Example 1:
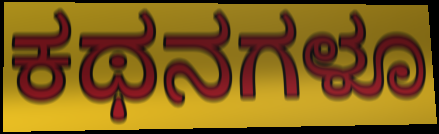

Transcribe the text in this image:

ಕಥನಗಳೂ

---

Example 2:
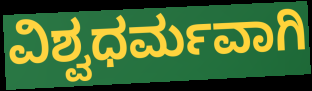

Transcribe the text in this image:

ವಿಶ್ವಧರ್ಮವಾಗಿ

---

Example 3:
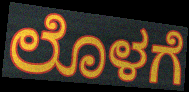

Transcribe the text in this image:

ಲೊಳಗೆ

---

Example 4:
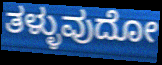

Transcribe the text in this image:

ತಳ್ಳುವುದೋ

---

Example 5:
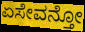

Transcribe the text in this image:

ಏಸೇವನ್ತೋ